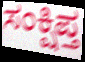
ಸಂಕ್ಷಿಪ್ತ